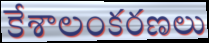
కేశాలంకరణలు